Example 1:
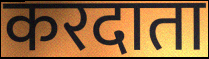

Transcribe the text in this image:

करदाता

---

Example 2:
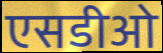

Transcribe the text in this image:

एसडीओ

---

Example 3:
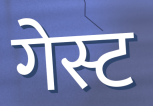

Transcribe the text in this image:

गेस्ट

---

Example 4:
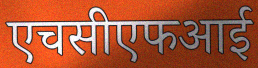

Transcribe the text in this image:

एचसीएफआई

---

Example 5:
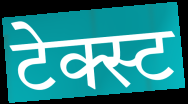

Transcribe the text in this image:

टेक्स्ट